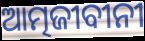
ଆତ୍ମଜୀବୀନୀ